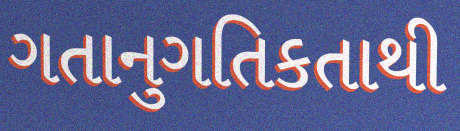
ગતાનુગતિકતાથી